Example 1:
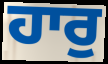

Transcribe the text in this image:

ਹਾਰੁ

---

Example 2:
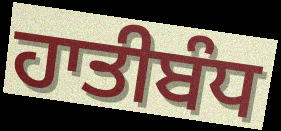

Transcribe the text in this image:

ਹਾਤੀਬੰਧ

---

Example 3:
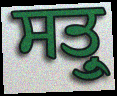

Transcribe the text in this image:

ਸਤ੍ਰੁ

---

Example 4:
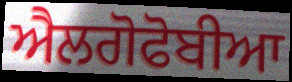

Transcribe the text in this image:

ਐਲਗੋਫੋਬੀਆ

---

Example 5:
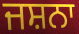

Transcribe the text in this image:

ਜਸ਼ਨਾ